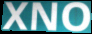
XNO